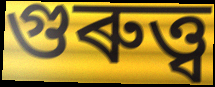
গুৰুত্ত্ব